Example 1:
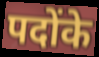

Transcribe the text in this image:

पदोंके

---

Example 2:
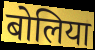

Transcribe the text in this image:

बोलिया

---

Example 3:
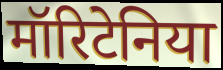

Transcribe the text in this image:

मॉरिटेनिया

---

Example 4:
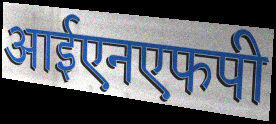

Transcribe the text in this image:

आईएनएफपी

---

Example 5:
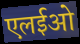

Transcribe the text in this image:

एलईओ